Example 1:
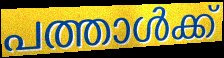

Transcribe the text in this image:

പത്താൾക്ക്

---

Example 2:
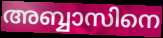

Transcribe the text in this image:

അബ്ബാസിനെ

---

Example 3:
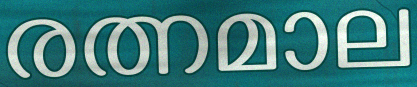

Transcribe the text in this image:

രത്നമാല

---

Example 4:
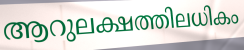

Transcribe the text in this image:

ആറുലക്ഷത്തിലധികം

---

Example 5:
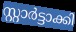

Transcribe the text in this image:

സ്റ്റാർട്ടാക്കി